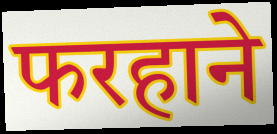
फरहाने